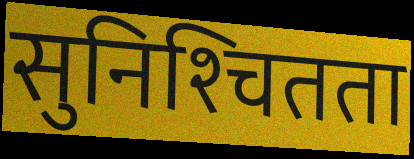
सुनिश्चितता